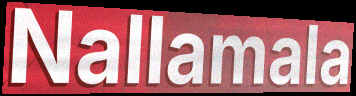
Nallamala